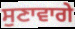
ਸੁਣਾਵਾਗੇ